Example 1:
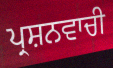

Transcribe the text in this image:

ਪ੍ਰਸ਼ਨਵਾਚੀ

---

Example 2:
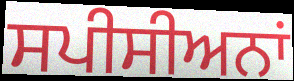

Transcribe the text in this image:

ਸਪੀਸੀਅਨਾਂ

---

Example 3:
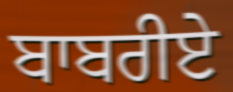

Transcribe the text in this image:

ਬਾਬਰੀਏ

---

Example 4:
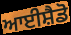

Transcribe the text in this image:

ਆਈਸ਼ੈਡੋ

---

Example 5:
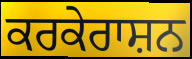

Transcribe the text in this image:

ਕਰਕੇਰਾਸ਼ਨ